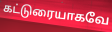
கட்டுரையாகவே